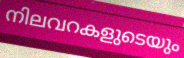
നിലവറകളുടെയും